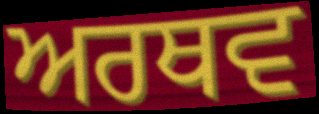
ਅਰਥਵ